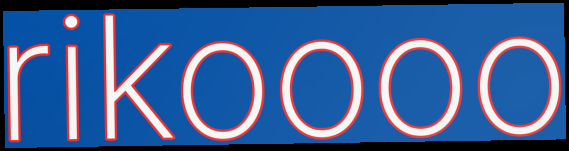
rikoooo